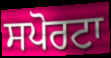
ਸਪੋਰਟਾ